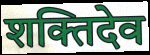
शक्तिदेव